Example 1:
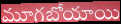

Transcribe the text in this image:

మూగబోయాయి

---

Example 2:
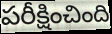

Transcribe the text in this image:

పరీక్షించింది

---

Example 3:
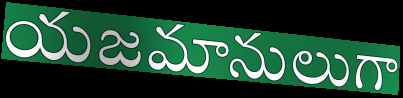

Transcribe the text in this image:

యజమానులుగా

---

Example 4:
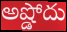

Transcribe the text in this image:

అష్డోదు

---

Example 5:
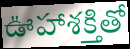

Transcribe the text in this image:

ఊహాశక్తితో